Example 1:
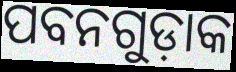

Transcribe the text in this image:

ପବନଗୁଡ଼ାକ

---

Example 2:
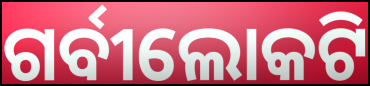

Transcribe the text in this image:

ଗର୍ବୀଲୋକଟି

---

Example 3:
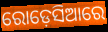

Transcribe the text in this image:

ରୋଡ଼େସିଆରେ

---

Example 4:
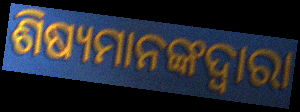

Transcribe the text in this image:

ଶିଷ୍ୟମାନଙ୍କଦ୍ୱାରା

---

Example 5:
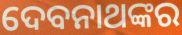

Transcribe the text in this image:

ଦେବନାଥଙ୍କର